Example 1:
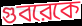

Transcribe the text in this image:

গুবরেকে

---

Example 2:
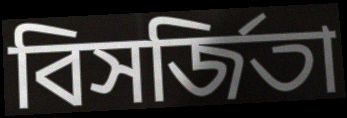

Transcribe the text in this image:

বিসর্জিতা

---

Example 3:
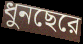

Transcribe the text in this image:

ধুনছেরে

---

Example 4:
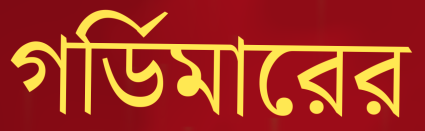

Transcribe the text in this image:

গর্ডিমারের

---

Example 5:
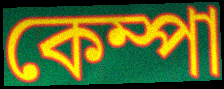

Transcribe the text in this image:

কেম্পা